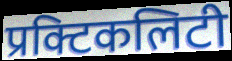
प्रक्टिकलिटी